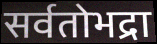
सर्वतोभद्रा